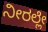
ನೀರಲ್ಲೇ